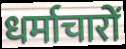
धर्माचारों